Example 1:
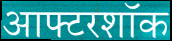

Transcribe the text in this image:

आफ्टरशॉक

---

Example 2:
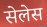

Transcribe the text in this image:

सेलेस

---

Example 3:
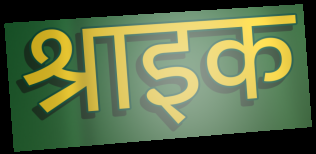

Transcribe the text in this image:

श्राइक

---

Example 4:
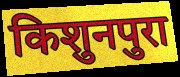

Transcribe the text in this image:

किशुनपुरा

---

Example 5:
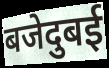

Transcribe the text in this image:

बजेदुबई